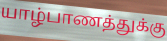
யாழ்பாணத்துக்கு